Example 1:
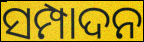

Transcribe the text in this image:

ସମ୍ପାଦନ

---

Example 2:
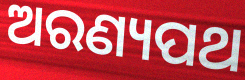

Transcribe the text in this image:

ଅରଣ୍ୟପଥ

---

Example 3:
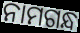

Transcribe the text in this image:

ନାମଗନ୍ଧ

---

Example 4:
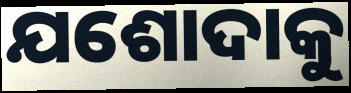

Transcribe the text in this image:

ଯଶୋଦାକୁ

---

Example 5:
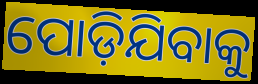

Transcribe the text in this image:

ପୋଡ଼ିଯିବାକୁ